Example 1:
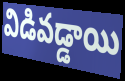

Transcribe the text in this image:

విడివడ్డాయి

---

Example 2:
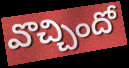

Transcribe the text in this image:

వొచ్చిందో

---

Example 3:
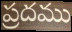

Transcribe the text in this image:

ప్రదము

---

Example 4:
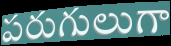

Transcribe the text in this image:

పరుగులుగా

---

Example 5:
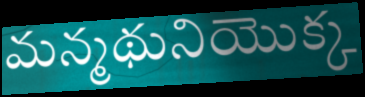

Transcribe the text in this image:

మన్మథునియొక్క